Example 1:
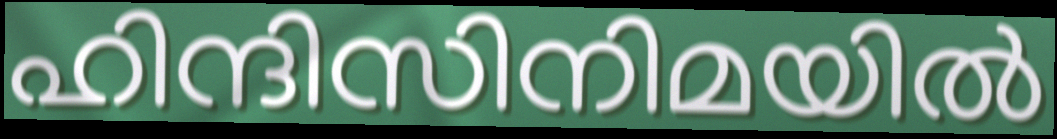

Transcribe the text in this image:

ഹിന്ദിസിനിമയിൽ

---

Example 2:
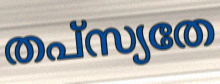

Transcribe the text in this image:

തപ്സ്യതേ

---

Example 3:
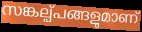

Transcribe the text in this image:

സങ്കല്പ്പങ്ങളുമാണ്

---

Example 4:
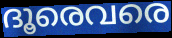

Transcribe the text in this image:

ദൂരെവരെ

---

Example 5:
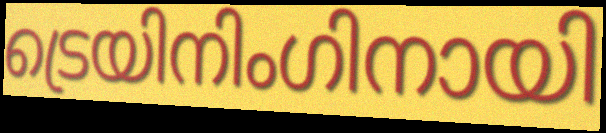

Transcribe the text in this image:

ട്രെയിനിംഗിനായി